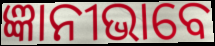
ଜ୍ଞାନୀଭାବେ